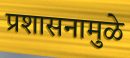
प्रशासनामुळे